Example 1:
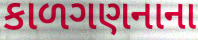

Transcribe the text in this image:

કાળગણનાના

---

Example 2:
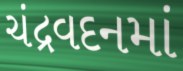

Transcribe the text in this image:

ચંદ્રવદનમાં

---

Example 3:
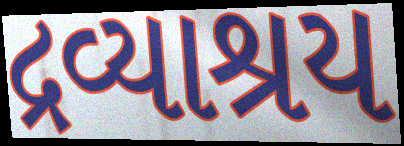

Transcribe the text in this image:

દ્રવ્યાશ્રય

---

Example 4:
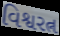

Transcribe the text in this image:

વિશ્વરત્ન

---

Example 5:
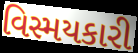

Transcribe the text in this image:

વિસ્મયકારી